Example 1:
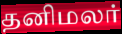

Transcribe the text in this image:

தனிமலர்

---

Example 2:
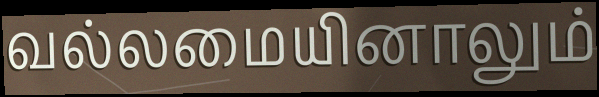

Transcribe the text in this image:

வல்லமையினாலும்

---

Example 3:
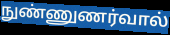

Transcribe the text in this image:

நுண்ணுணர்வால்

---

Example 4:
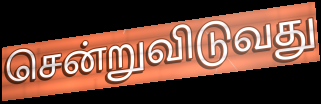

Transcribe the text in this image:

சென்றுவிடுவது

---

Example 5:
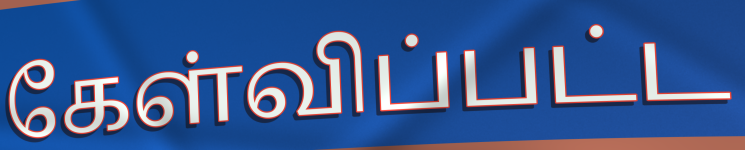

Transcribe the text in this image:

கேள்விப்பட்ட